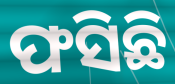
ଫସିଛି